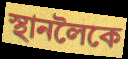
স্থানলৈকে